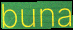
buna